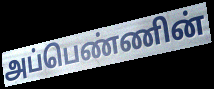
அப்பெண்ணின்